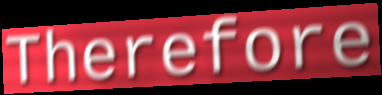
Therefore